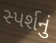
સ્પર્શનું